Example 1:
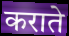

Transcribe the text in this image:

कराते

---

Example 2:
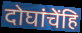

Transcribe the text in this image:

दोघांचेंहि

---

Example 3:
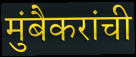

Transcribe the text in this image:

मुंबैकरांची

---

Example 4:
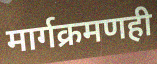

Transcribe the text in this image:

मार्गक्रमणही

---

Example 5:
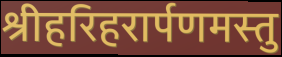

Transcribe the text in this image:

श्रीहरिहरार्पणमस्तु